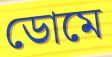
ডোমে